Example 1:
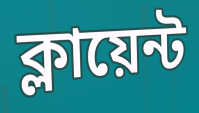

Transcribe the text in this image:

ক্লায়েন্ট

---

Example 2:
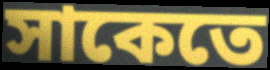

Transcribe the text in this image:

সাকেতে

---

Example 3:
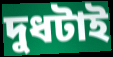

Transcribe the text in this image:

দুধটাই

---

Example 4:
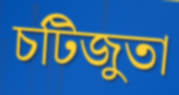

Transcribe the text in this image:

চটিজুতা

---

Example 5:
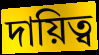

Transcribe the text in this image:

দায়িত্ব